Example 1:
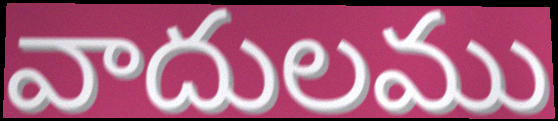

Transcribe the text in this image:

వాదులము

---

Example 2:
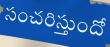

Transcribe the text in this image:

సంచరిస్తుందో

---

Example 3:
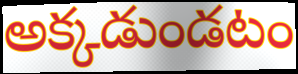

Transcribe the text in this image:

అక్కడుండటం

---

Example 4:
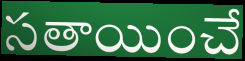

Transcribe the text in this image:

సతాయించే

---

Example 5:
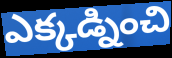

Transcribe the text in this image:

ఎక్కడ్నించి